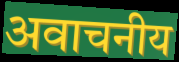
अवाचनीय